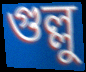
গুল্লু